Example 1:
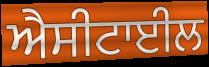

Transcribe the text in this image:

ਐਸੀਟਾਈਲ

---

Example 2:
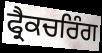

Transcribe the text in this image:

ਫ੍ਰੈਕਚਰਿੰਗ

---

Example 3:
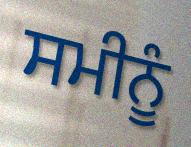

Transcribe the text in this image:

ਸਮੀਨੂੰ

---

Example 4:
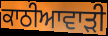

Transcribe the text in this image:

ਕਾਠੀਆਵਾੜੀ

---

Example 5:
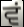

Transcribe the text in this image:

ਵਂ